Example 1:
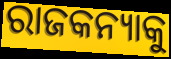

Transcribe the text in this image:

ରାଜକନ୍ୟାକୁ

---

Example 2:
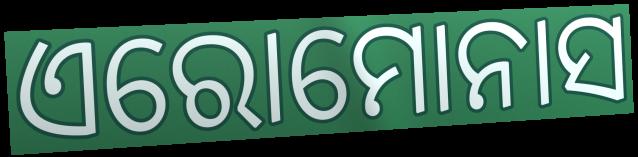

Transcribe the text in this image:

ଏରୋମୋନାସ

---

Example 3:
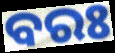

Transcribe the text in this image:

ବରଃ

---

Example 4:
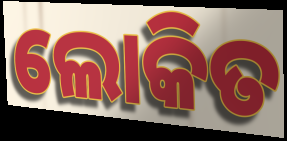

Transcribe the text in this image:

ଲୋକିତ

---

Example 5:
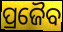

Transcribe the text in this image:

ପ୍ରଜୈବ